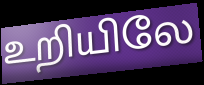
உறியிலே